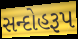
સન્દોહરૂપ